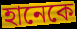
হানেকে